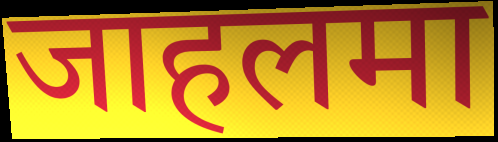
जाहलमा